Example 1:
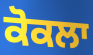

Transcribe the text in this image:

ਕੋਕਲਾ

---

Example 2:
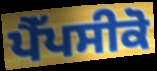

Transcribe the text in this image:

ਪੈੱਪਸੀਕੋ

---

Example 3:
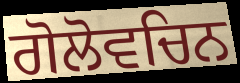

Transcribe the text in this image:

ਗੋਲੋਵਚਿਨ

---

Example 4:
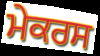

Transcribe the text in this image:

ਮੇਕਰਸ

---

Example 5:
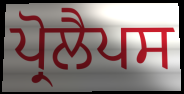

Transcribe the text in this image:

ਪ੍ਰੋਲੈਪਸ